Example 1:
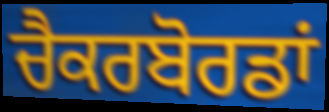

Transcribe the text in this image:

ਚੈਕਰਬੋਰਡਾਂ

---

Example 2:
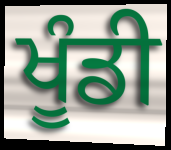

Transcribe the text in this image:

ਖੂੰਡੀ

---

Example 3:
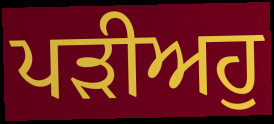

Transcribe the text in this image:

ਪੜੀਅਹੁ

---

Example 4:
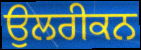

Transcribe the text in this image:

ਉਲਰੀਕਨ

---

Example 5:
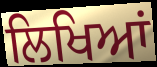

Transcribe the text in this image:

ਲਿਖਿਆਂ